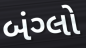
બંગ્લો